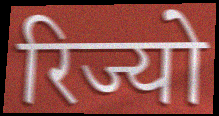
रिज्यो